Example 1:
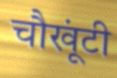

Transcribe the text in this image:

चौखूंटी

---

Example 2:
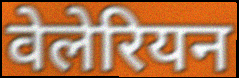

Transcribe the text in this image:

वेलेरियन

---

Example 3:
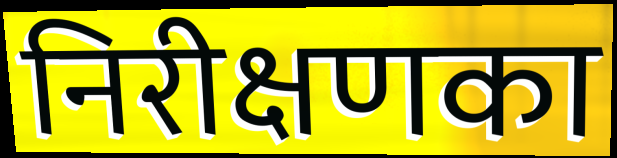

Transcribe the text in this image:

निरीक्षणका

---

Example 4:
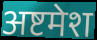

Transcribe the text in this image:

अष्टमेश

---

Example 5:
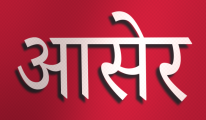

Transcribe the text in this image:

आसेर